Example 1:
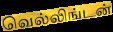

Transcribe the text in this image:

வெல்லிங்டன்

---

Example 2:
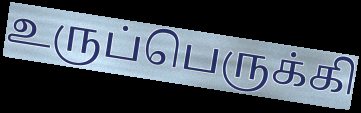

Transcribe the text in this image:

உருப்பெருக்கி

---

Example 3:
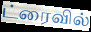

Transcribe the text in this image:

ட்ரைவில்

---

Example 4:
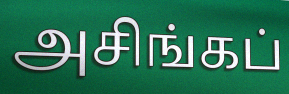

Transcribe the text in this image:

அசிங்கப்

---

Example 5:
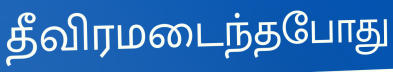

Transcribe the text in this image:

தீவிரமடைந்தபோது